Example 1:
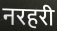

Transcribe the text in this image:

नरहरी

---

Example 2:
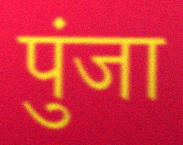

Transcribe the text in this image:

पुंजा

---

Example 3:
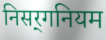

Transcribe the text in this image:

निसर्गनियम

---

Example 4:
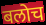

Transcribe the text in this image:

बलोच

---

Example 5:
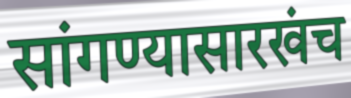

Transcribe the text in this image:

सांगण्यासारखंच